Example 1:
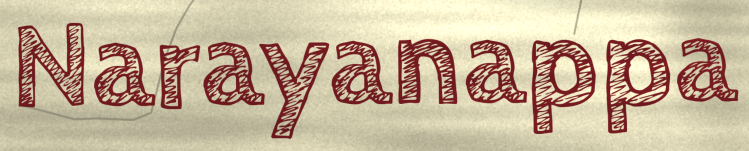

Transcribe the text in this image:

Narayanappa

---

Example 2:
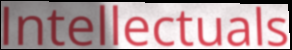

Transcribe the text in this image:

Intellectuals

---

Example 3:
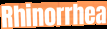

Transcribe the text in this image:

Rhinorrhea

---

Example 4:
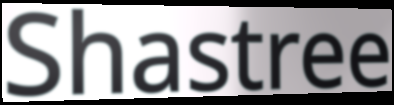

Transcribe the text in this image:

Shastree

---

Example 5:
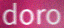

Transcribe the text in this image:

doro